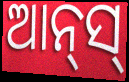
ଆନ୍‌ସ୍